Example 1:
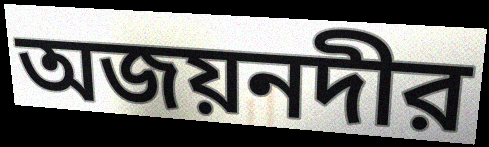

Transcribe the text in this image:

অজয়নদীর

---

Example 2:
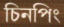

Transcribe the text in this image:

চিনপিং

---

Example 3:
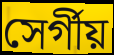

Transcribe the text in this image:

সের্গীয়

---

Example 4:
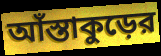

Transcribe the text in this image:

আঁস্তাকুড়ের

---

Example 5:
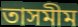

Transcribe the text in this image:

তাসমীম